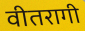
वीतरागी